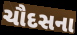
ચૌદસના